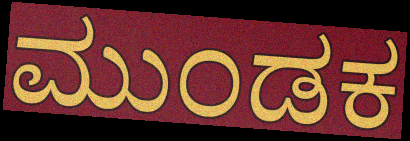
ಮುಂಡಕ